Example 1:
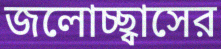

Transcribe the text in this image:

জলোচ্ছ্বাসের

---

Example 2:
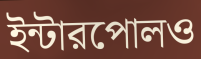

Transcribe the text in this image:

ইন্টারপোলও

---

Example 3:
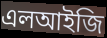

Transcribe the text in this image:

এলআইজি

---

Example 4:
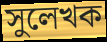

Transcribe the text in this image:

সুলেখক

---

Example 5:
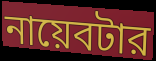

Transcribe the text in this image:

নায়েবটার